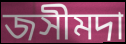
জসীমদা